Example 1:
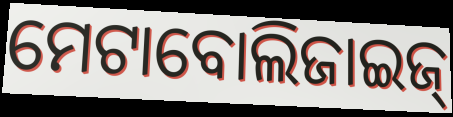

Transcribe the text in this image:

ମେଟାବୋଲିଜାଇଜ୍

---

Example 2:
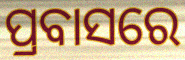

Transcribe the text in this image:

ପ୍ରବାସରେ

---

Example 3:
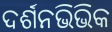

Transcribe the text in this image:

ଦର୍ଶନଭିଭିକ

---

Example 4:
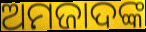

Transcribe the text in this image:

ଅମଜାଦଙ୍କ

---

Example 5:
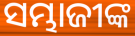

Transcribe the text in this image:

ସମ୍ଭାଜୀଙ୍କ